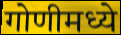
गोणीमध्ये